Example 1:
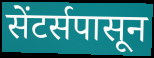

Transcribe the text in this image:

सेंटर्सपासून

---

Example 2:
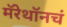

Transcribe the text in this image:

मॅरेथॉनचं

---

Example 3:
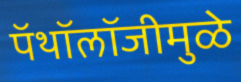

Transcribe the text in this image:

पॅथॉलॉजीमुळे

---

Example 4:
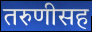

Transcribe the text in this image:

तरुणीसह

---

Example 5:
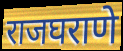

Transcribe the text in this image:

राजघराणे